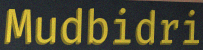
Mudbidri